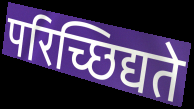
परिच्छिद्यते